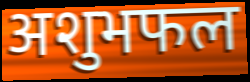
अशुभफल